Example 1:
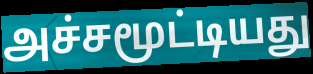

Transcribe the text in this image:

அச்சமூட்டியது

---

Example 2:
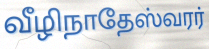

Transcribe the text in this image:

வீழிநாதேஸ்வரர்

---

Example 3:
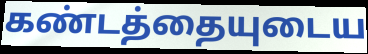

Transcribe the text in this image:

கண்டத்தையுடைய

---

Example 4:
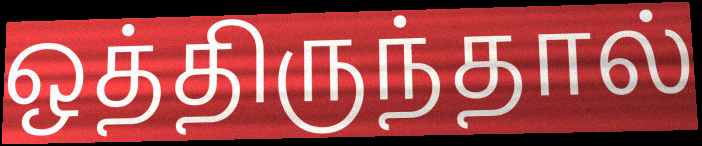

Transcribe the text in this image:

ஒத்திருந்தால்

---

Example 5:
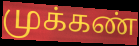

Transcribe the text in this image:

முக்கண்